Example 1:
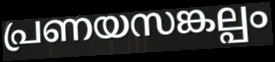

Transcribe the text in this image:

പ്രണയസങ്കല്പം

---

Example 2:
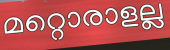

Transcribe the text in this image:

മറ്റൊരാളല്ല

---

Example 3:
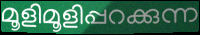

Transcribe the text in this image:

മൂളിമൂളിപ്പറക്കുന്ന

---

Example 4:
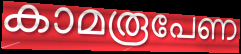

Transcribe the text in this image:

കാമരൂപേണ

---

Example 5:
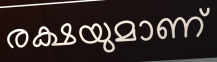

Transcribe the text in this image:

രക്ഷയുമാണ്